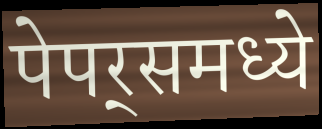
पेपर्समध्ये